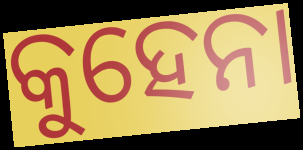
କୁହେନା